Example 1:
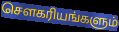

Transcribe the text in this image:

சௌகரியங்களும்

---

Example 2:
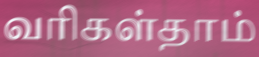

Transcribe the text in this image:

வரிகள்தாம்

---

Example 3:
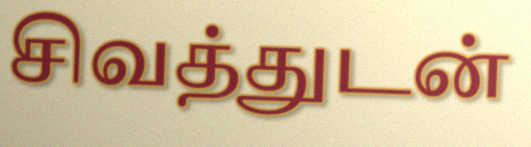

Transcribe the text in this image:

சிவத்துடன்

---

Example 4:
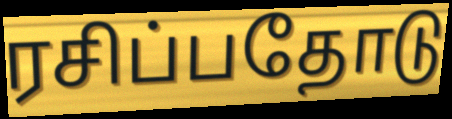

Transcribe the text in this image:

ரசிப்பதோடு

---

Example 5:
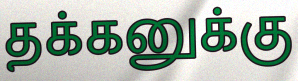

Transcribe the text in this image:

தக்கனுக்கு